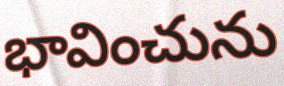
భావించును